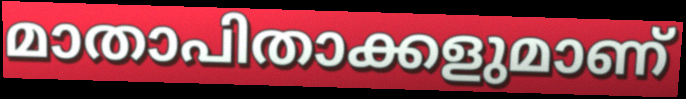
മാതാപിതാക്കളുമാണ്